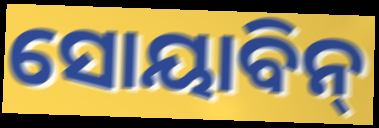
ସୋୟାବିନ୍